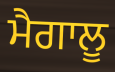
ਮੈਗਾਲੂ